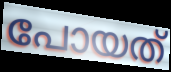
പോയത്